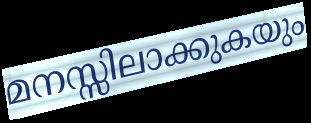
മനസ്സിലാക്കുകയും